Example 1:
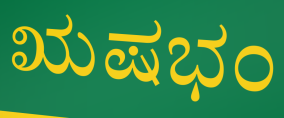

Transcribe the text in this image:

ಋಷಭಂ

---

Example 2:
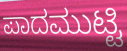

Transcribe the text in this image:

ಪಾದಮುಟ್ಟಿ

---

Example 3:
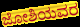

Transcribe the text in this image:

ಜೋಶಿಯವರ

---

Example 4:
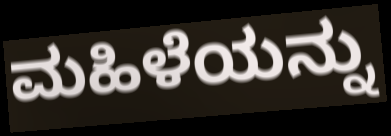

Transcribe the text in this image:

ಮಹಿಳೆಯನ್ನು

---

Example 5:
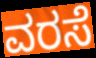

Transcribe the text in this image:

ವರಸೆ